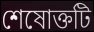
শেষোক্তটি